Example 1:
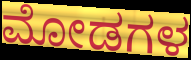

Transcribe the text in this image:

ಮೋಡಗಳ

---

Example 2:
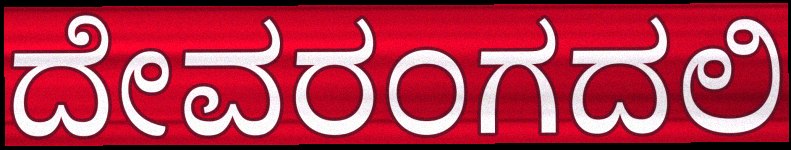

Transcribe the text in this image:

ದೇವರಂಗದಲಿ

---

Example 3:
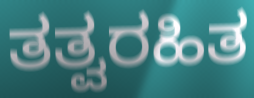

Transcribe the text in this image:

ತತ್ವರಹಿತ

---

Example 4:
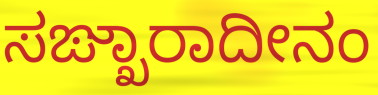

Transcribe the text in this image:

ಸಙ್ಖಾರಾದೀನಂ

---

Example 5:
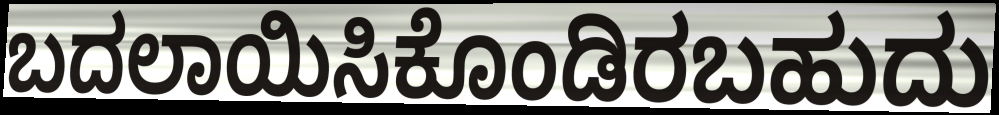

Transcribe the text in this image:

ಬದಲಾಯಿಸಿಕೊಂಡಿರಬಹುದು